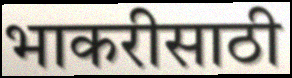
भाकरीसाठी